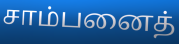
சாம்பனைத்